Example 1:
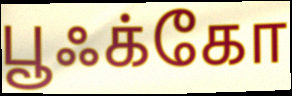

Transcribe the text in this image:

பூஃக்கோ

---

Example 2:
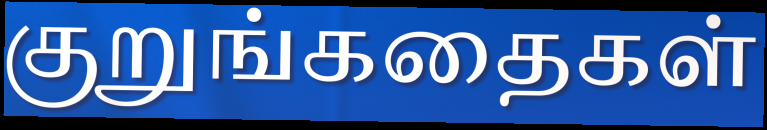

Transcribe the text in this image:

குறுங்கதைகள்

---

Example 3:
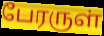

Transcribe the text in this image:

பேரருள்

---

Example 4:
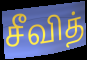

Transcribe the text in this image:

சீவித்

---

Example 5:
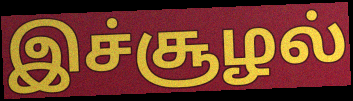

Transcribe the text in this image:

இச்சூழல்